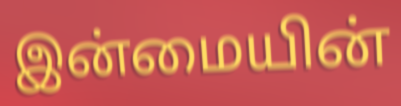
இன்மையின்